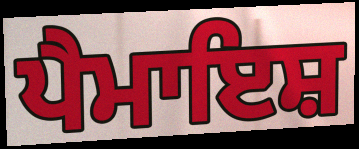
ਪੈਮਾਇਸ਼